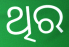
ଥିର